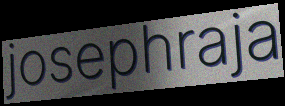
josephraja